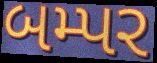
બમ્પર